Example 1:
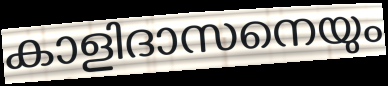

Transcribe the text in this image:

കാളിദാസനെയും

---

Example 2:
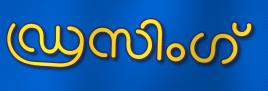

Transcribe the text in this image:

ഡ്രസിംഗ്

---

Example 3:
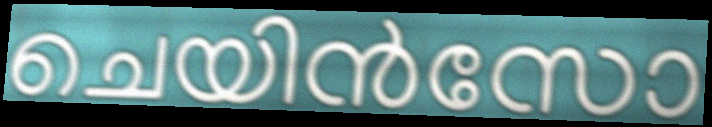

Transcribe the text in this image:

ചെയിൻസോ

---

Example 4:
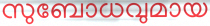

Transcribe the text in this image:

സുബോധവുമായ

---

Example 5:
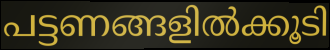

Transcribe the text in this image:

പട്ടണങ്ങളിൽക്കൂടി